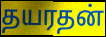
தயரதன்